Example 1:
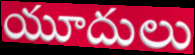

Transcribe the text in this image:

యూదులు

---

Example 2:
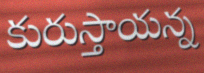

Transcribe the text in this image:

కురుస్తాయన్న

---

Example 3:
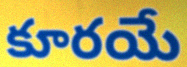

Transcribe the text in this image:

కూరయే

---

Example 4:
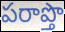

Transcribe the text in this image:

పరాప్తొ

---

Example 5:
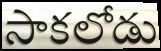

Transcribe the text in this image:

సాకలోడు